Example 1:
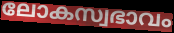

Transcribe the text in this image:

ലോകസ്വഭാവം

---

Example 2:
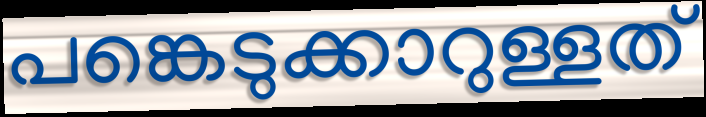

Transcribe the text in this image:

പങ്കെടുക്കാറുള്ളത്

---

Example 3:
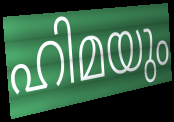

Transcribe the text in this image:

ഹിമയും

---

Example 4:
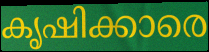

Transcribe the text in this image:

കൃഷിക്കാരെ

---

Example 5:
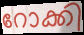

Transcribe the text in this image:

റോക്കി